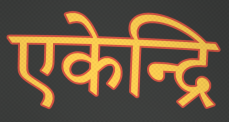
एकेन्द्रि